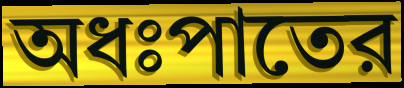
অধঃপাতের